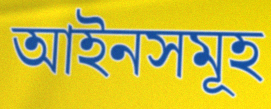
আইনসমূহ